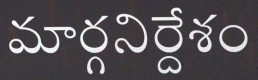
మార్గనిర్దేశం